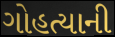
ગોહત્યાની